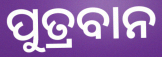
ପୁତ୍ରବାନ